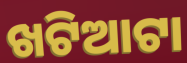
ଖଟିଆଟା